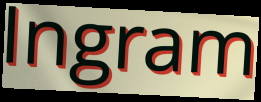
Ingram